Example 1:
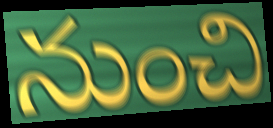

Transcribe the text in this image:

నుంచి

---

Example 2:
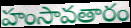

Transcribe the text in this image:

హంసావతారం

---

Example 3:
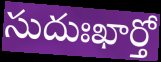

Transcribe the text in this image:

సుదుఃఖార్తో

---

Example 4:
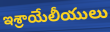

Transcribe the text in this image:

ఇశ్రాయేలీయులు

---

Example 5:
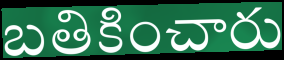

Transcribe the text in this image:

బతికించారు